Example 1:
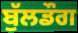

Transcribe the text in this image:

ਬੁੱਲਡੌਗ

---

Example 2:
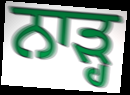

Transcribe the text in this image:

ਨਾੜ੍ਹ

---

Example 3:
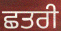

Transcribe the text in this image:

ਛਤਰੀ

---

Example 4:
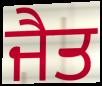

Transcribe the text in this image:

ਜੈਤ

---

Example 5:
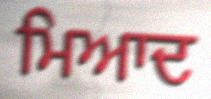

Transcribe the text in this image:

ਮਿਆਦ